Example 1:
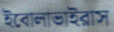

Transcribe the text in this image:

ইবোলাভাইরাস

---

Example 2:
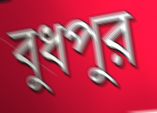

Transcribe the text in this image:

বুধপুর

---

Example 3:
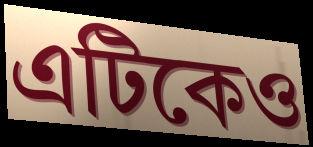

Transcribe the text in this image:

এটিকেও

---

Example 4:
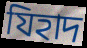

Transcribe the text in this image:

যিহাদ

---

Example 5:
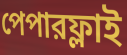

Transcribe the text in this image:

পেপারফ্লাই